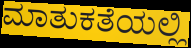
ಮಾತುಕತೆಯಲ್ಲಿ